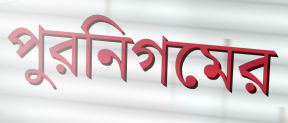
পুরনিগমের